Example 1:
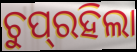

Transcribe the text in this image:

ଚୁପ୍‌ରହିଲା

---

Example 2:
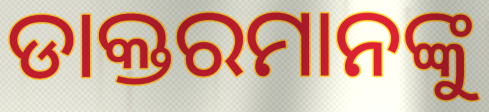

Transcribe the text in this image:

ଡାକ୍ତରମାନଙ୍କୁ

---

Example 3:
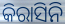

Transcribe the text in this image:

କିରାସିନି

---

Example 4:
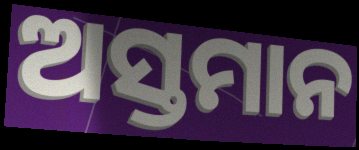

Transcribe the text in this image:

ଅସ୍ତମାନ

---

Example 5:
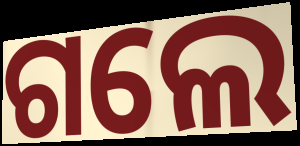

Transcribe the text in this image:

ଗଲେ